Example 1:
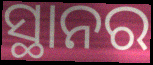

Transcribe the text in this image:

ସ୍ଥାନର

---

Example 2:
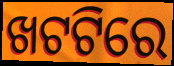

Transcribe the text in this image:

ଖଟଟିରେ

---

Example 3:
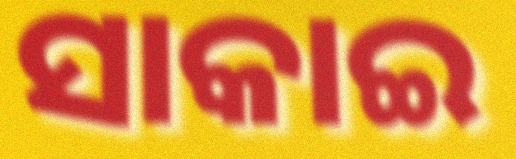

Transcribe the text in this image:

ସାକାଇ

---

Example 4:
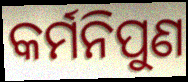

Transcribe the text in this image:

କର୍ମନିପୁଣ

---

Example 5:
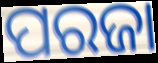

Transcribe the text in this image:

ପରଜା